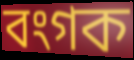
বংগক